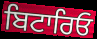
ਬਿਟਾਰਿਓ